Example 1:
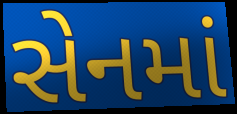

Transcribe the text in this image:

સેનમાં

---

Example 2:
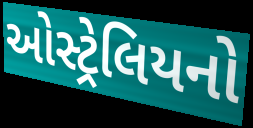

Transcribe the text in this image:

ઓસ્ટ્રેલિયનો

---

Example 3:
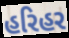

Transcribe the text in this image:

હરિહર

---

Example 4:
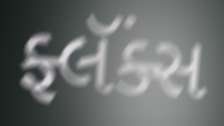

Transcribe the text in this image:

ફ્લૅંક્સ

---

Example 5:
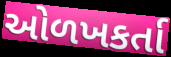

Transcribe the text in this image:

ઓળખકર્તા